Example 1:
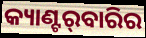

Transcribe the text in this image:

କ୍ୟାଣ୍ଟର୍‌ବାରିର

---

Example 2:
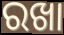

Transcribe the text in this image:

ରଖା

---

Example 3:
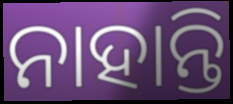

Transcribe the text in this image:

ନାହାନ୍ତି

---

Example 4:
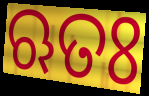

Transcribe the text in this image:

ଋତଃ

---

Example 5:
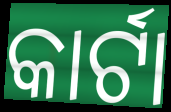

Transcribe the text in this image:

କାର୍ଟା